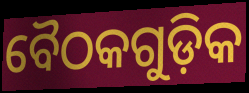
ବୈଠକଗୁଡ଼ିକ